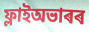
ফ্লাইঅভাৰৰ